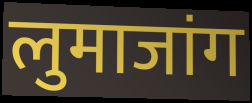
लुमाजांग